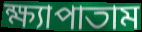
ক্ষ্যাপাতাম